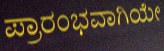
ಪ್ರಾರಂಭವಾಗಿಯೇ